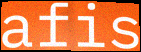
afis